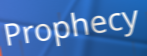
Prophecy